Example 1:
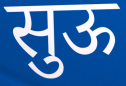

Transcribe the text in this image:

सुऊ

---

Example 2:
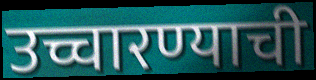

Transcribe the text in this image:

उच्चारण्याची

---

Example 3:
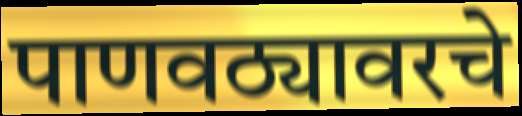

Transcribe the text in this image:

पाणवठ्यावरचे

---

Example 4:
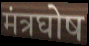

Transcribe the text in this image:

मंत्रघोष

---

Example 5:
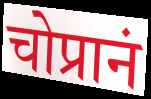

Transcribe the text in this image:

चोप्रानं